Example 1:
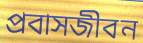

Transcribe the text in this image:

প্রবাসজীবন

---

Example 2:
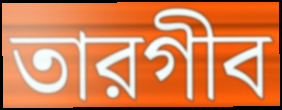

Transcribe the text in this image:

তারগীব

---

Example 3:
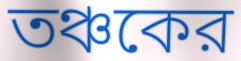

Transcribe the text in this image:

তঞ্চকের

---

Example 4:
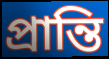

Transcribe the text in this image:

প্রান্তি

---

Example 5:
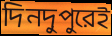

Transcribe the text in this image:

দিনদুপুরেই